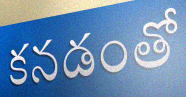
కనడంతో